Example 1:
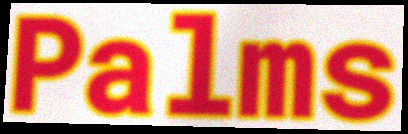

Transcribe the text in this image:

Palms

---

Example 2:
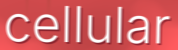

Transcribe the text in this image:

cellular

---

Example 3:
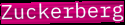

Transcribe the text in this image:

Zuckerberg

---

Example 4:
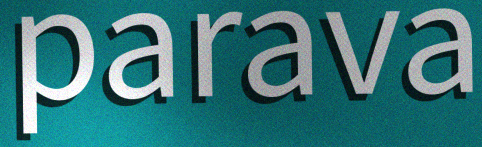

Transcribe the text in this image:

parava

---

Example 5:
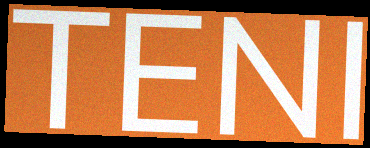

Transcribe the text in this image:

TENI